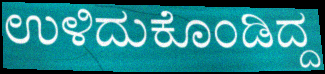
ಉಳಿದುಕೊಂಡಿದ್ದ